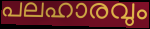
പലഹാരവും